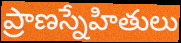
ప్రాణస్నేహితులు